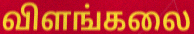
விளங்கலை